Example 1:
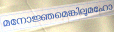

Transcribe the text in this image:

മനോജ്ഞമെങ്കിലുമഹോ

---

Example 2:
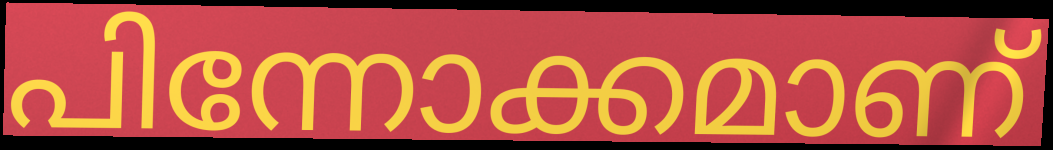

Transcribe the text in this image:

പിന്നോക്കമാണ്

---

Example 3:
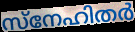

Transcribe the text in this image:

സ്നേഹിതർ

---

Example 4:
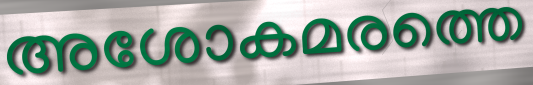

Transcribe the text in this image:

അശോകമരത്തെ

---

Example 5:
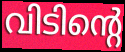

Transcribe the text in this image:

വിടിന്റെ